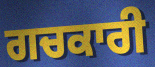
ਗਚਕਾਰੀ